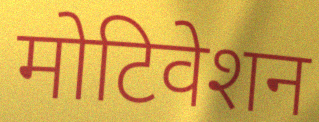
मोटिवेशन